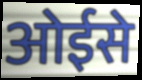
ओईसे